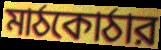
মাঠকোঠার